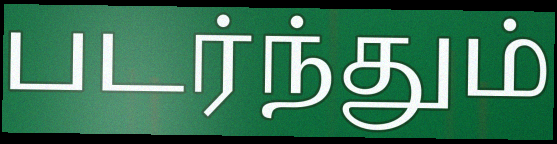
படர்ந்தும்